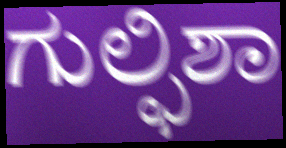
ಗುಲ್ಫಿಶಾ